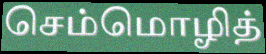
செம்மொழித்